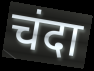
चंदा